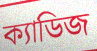
ক্যাডিজ